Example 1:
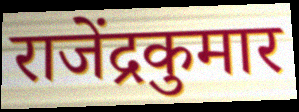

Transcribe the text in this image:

राजेंद्रकुमार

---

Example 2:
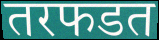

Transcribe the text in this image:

तरफडत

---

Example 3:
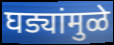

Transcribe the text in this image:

घड्यांमुळे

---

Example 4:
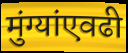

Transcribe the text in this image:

मुंग्यांएवढी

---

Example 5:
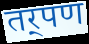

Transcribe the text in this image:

तर्पण